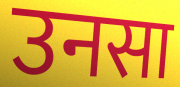
उनसा